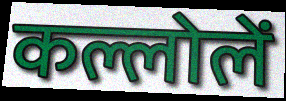
कल्लोलें